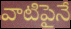
వాటిపైనే